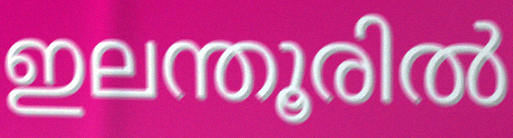
ഇലന്തൂരിൽ